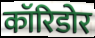
कॉरिडोर